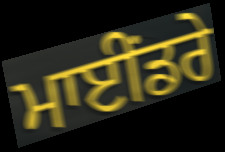
ਮਾਈਂਡਰੇ